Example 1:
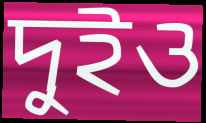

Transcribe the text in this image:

দুইও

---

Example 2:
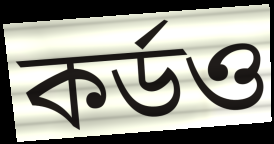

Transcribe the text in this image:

কর্ডও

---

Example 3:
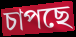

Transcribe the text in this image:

চাপছে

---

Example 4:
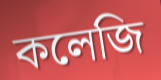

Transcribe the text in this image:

কলেজি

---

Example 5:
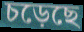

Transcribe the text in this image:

চড়েছে